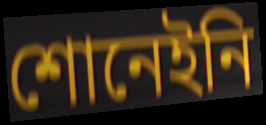
শোনেইনি